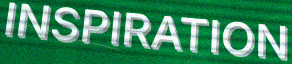
INSPIRATION